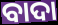
ବାଦା